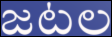
జటల